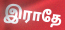
இராதே